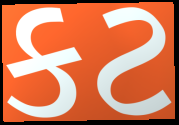
કટ